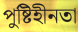
পুষ্টিহীনতা